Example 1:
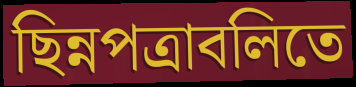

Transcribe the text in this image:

ছিন্নপত্রাবলিতে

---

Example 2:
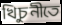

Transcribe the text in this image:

খিচুনীতে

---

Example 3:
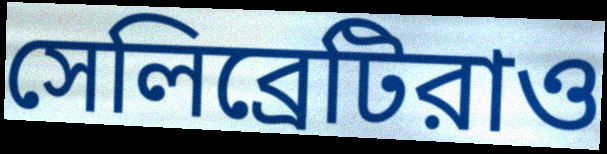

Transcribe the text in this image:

সেলিব্রেটিরাও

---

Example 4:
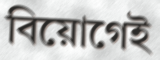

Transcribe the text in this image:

বিয়োগেই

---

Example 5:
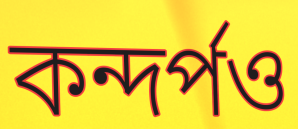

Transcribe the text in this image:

কন্দর্পও